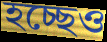
হচ্ছেও